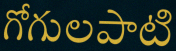
గోగులపాటి